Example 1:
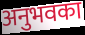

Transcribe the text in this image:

अनुभवका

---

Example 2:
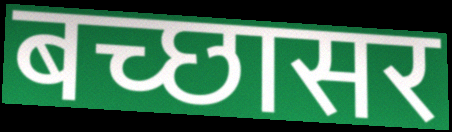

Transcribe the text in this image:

बच्छासर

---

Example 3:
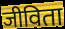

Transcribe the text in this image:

जीविता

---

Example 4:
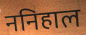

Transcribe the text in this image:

ननिहाल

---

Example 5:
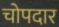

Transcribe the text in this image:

चोपदार